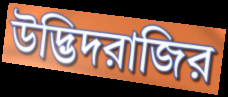
উদ্ভিদরাজির